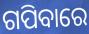
ଗପିବାରେ